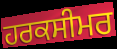
ਹਰਕਸੀਮਰ